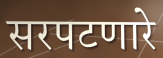
सरपटणारे